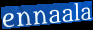
ennaala